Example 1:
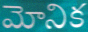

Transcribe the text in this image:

మోనిక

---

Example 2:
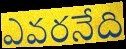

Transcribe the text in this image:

ఎవరనేది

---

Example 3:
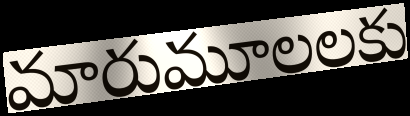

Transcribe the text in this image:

మారుమూలలకు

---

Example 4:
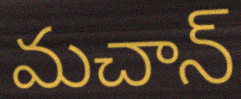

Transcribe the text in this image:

మచాన్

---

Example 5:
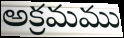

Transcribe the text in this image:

అక్రమము